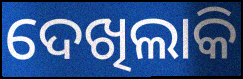
ଦେଖିଲାକି